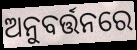
ଅନୁବର୍ତ୍ତନରେ